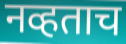
नव्हताच